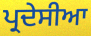
ਪ੍ਰਦੇਸੀਆ